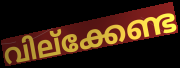
വില്ക്കേണ്ട